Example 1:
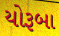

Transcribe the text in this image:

યોરૂબા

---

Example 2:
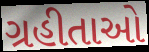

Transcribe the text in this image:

ગ્રહીતાઓ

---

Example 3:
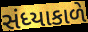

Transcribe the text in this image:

સંધ્યાકાળે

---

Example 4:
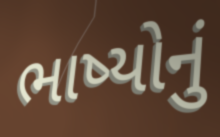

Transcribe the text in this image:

ભાષ્યોનું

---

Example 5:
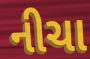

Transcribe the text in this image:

નીચા